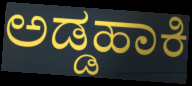
ಅಡ್ಡಹಾಕಿ